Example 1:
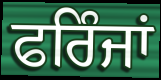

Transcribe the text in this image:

ਫਰਿੰਜਾਂ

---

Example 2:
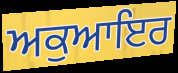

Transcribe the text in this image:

ਅਕੁਆਇਰ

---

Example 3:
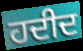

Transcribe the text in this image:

ਹਦੀਦ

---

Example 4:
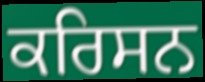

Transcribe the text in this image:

ਕਰਿਸਨ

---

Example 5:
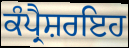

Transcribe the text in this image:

ਕੰਪ੍ਰੈਸ਼ਰਇਹ